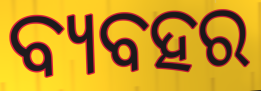
ବ୍ୟବହର